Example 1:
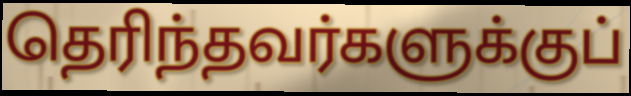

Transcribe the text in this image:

தெரிந்தவர்களுக்குப்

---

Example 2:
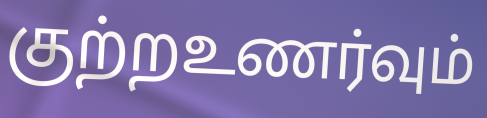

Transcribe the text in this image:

குற்றஉணர்வும்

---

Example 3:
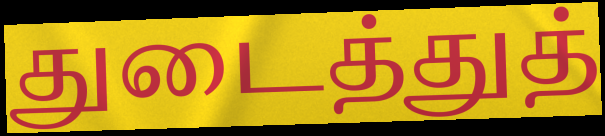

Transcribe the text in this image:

துடைத்துத்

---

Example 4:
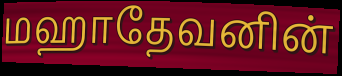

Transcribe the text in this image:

மஹாதேவனின்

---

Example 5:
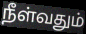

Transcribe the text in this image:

நீள்வதும்